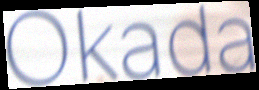
Okada